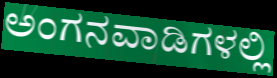
ಅಂಗನವಾಡಿಗಳಲ್ಲಿ